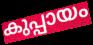
കുപ്പായം